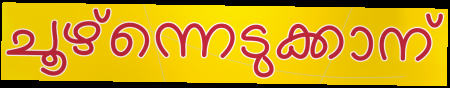
ചൂഴ്ന്നെടുക്കാന്